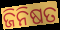
ଜିନିଷତ